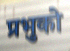
प्रभुको